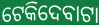
ଟେକିଦେବାଟା